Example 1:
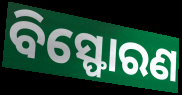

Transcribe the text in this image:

ବିସ୍ଫୋରଣ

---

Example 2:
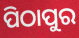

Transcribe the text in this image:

ପିଠାପୁର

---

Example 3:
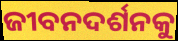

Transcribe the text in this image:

ଜୀବନଦର୍ଶନକୁ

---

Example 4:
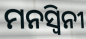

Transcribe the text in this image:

ମନସ୍ୱିନୀ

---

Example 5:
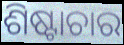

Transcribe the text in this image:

ଶିଷ୍ଟାଚାର